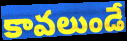
కావలుండే